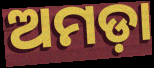
ଅମଡ଼ା